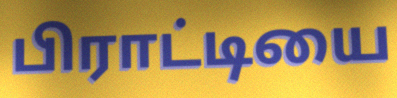
பிராட்டியை